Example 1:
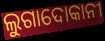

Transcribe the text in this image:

ଲୁଗାଦୋକାନୀ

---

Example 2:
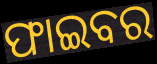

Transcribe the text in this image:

ଫାଇବର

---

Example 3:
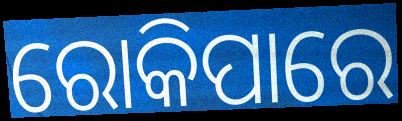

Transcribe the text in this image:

ରୋକିପାରେ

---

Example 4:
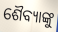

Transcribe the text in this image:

ଶୈବ୍ୟାଙ୍କୁ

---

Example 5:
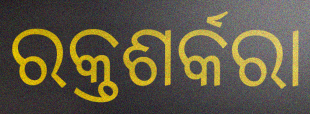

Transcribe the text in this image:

ରକ୍ତଶର୍କରା